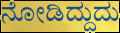
ನೋಡಿದ್ದುದು